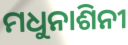
ମଧୁନାଶିନୀ